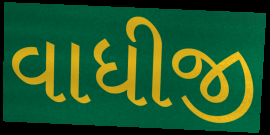
વાધીજી